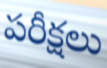
పరీక్షలు